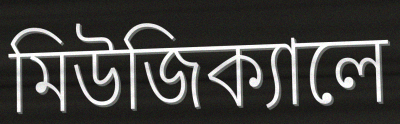
মিউজিক্যালে